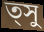
ত্সু